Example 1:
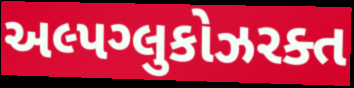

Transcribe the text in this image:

અલ્પગ્લુકોઝરક્ત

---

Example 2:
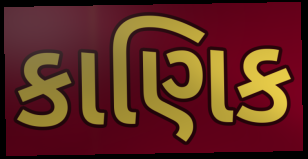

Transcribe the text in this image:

કાણિક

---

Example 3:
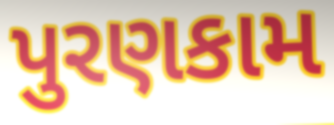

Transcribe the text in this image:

પુરણકામ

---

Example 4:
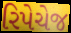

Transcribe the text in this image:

રિપેચેજ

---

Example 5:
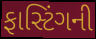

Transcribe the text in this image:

ફાસ્ટિંગની